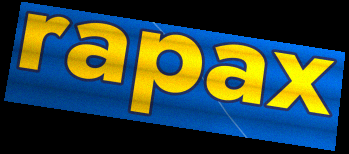
rapax